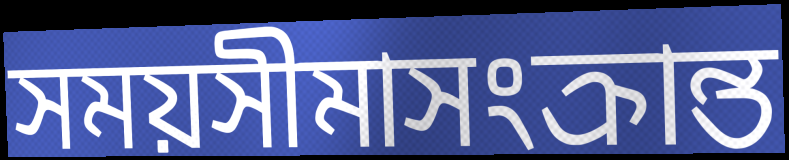
সময়সীমাসংক্রান্ত